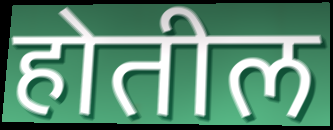
होतील